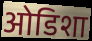
ओडिशा